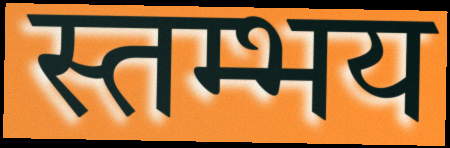
स्तम्भय